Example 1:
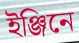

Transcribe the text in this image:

ইঞ্জিনে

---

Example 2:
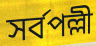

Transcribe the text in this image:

সৰ্বপল্লী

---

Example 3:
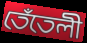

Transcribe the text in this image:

তেঁতেলী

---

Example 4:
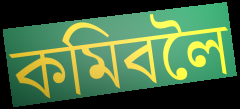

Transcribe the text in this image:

কমিবলৈ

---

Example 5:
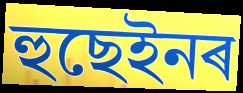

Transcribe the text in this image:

হুছেইনৰ